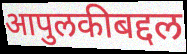
आपुलकीबद्दल